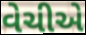
વેચીએ